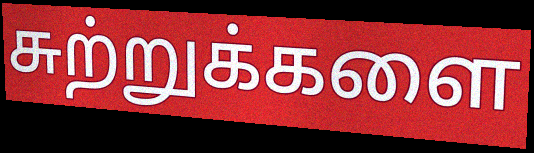
சுற்றுக்களை